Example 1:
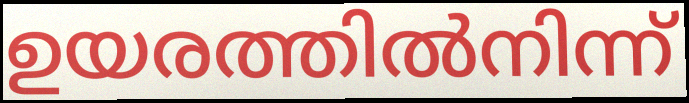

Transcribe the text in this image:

ഉയരത്തിൽനിന്ന്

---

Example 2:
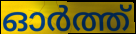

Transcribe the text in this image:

ഓർത്ത്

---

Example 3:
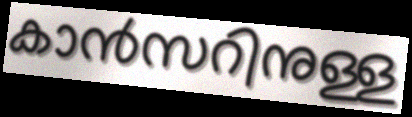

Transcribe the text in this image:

കാൻസറിനുള്ള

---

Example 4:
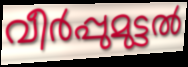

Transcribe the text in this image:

വീർപ്പുമുട്ടൽ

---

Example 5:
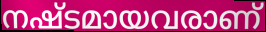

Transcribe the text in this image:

നഷ്ടമായവരാണ്